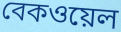
বেকওয়েল